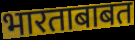
भारताबाबत